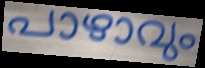
പാഴാവും